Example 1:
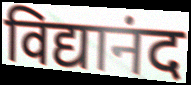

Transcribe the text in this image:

विद्यानंद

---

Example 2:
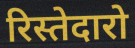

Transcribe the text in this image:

रिस्तेदारो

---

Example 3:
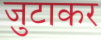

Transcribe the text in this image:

जुटाकर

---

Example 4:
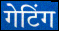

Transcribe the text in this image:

गेटिंग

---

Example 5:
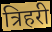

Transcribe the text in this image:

त्रिहरी